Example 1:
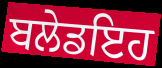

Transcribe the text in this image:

ਬਲੇਡਇਹ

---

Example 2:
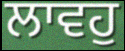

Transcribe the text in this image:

ਲਾਵਹੁ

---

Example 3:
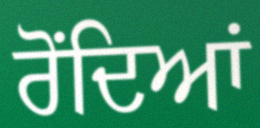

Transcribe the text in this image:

ਰੋਂਦਿਆਂ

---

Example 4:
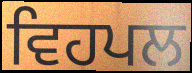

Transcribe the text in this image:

ਵਿਹਪਲ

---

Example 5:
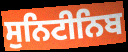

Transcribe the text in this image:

ਸੁਨਿਟੀਨਿਬ